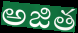
అజిత